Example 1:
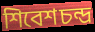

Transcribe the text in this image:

শিবেশচন্দ্র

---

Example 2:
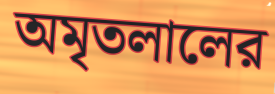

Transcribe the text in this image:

অমৃতলালের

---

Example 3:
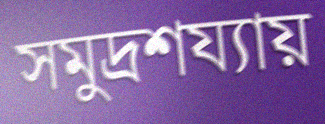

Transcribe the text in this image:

সমুদ্রশয্যায়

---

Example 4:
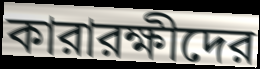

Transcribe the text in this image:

কারারক্ষীদের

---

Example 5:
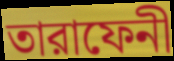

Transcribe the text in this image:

তারাফেনী